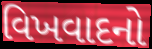
વિખવાદનો